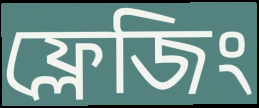
ফ্লেজিং